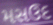
મસઉદ